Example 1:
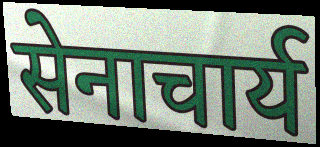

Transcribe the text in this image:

सेनाचार्य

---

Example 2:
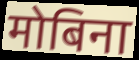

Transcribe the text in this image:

मोबिना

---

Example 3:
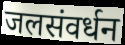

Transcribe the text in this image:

जलसंवर्धन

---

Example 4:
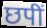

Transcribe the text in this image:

छपीं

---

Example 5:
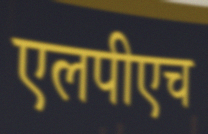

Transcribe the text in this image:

एलपीएच